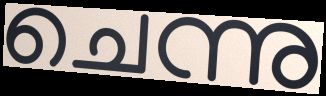
ചെന്നു